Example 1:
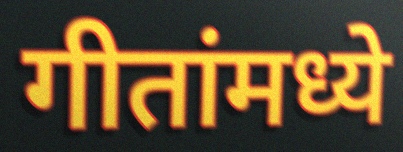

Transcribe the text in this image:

गीतांमध्ये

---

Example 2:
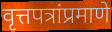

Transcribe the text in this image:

वृत्तपत्रांप्रमाणे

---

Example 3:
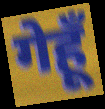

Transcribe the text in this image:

गेहूँ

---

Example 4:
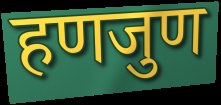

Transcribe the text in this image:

हणजुण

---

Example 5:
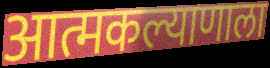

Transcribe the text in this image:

आत्मकल्याणाला